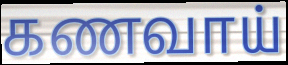
கணவாய்